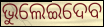
ଭୁଲେଇଦେବ